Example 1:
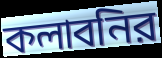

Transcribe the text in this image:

কলাবনির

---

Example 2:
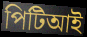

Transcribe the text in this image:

পিটিআই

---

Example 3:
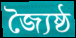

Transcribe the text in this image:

জ্যৈষ্ঠ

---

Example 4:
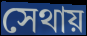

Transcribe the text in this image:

সেথায়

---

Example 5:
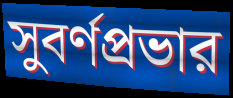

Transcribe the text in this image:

সুবর্ণপ্রভার